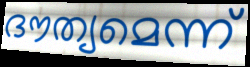
ദൗത്യമെന്ന്